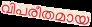
വിപരീതമായ